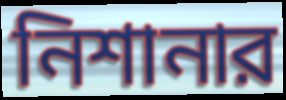
নিশানার